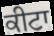
ਕੀਟਾ